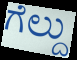
ಗೆಲ್ದು